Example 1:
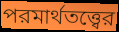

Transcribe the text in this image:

পরমার্থতত্ত্বের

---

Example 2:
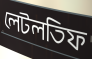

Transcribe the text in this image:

লেটলতিফ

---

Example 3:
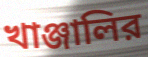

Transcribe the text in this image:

খাঞ্জালির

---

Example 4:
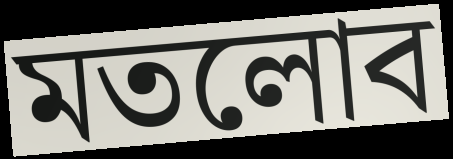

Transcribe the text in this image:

মতলোব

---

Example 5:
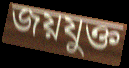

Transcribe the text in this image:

জয়যুক্ত